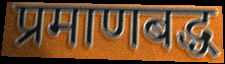
प्रमाणबद्ध